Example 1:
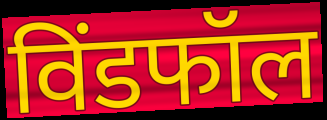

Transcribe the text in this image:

विंडफॉल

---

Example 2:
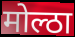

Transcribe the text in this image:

मोल्ठा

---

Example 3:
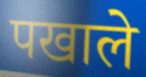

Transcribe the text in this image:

पखाले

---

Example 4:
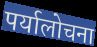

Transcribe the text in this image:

पर्यालोचना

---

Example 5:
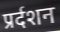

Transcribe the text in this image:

प्रर्दशन